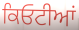
ਕਿਓਟੀਆਂ